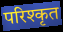
परिश्कृत